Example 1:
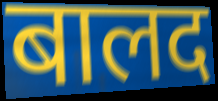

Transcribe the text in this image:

बालद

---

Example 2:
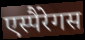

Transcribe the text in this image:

एस्पैरेगस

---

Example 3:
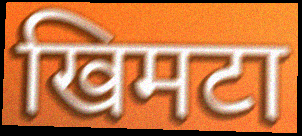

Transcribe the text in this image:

खिमटा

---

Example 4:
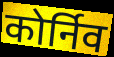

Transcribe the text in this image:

कोर्निव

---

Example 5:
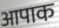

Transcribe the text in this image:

आपाक